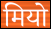
मियो